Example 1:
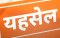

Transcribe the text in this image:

यहसेल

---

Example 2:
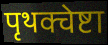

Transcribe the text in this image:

पृथक्चेष्टा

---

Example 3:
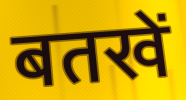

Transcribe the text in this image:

बतखें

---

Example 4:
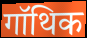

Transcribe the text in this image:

गॉथिक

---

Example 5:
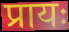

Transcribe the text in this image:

प्रायः